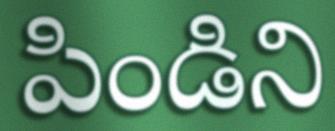
పిండిని